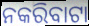
ନକରିବାଟା